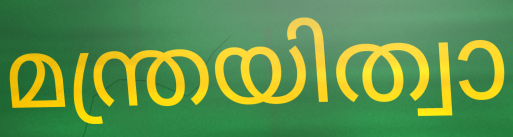
മന്ത്രയിത്വാ